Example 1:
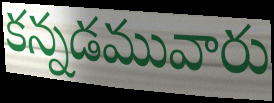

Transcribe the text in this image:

కన్నడమువారు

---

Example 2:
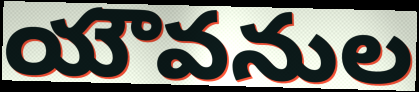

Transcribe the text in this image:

యౌవనుల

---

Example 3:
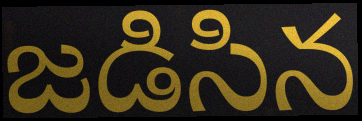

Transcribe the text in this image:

జడిసిన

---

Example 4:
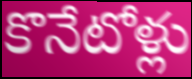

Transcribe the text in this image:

కొనేటోళ్లు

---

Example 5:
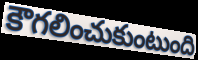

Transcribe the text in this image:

కౌగలించుకుంటుంది